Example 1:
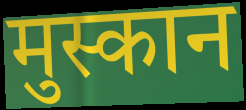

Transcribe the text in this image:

मुस्‍कान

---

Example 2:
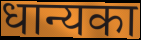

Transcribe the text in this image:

धान्यका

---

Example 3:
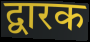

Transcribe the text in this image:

द्वारक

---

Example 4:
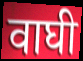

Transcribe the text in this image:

वाघी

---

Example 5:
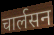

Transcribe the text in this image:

चार्लसन